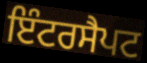
ਇੰਟਰਸੈਪਟ